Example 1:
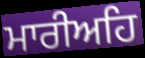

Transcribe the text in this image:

ਮਾਰੀਅਹਿ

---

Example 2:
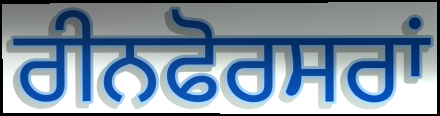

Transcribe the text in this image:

ਰੀਨਫੋਰਸਰਾਂ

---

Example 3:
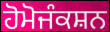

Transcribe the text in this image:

ਹੋਮੋਜੰਕਸ਼ਨ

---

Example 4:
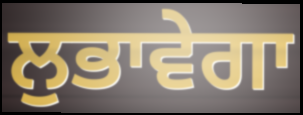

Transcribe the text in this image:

ਲੁਭਾਵੇਗਾ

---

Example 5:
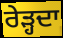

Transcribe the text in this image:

ਰੇੜ੍ਹਦਾ